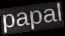
papal